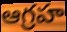
ఆగ్రహ